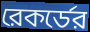
রেকর্ডের